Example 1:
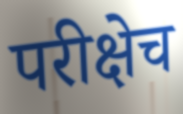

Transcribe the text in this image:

परीक्षेच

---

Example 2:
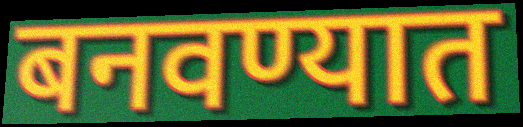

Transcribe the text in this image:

बनवण्यात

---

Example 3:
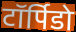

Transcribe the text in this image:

टॉर्पिडो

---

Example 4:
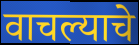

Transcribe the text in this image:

वाचल्याचे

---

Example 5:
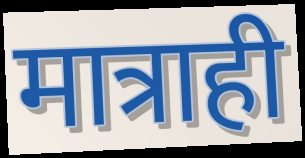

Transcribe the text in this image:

मात्राही